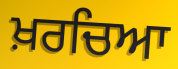
ਖ਼ਰਚਿਆ